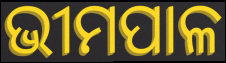
ଭୀମପାଳ